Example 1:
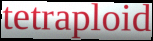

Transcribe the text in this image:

tetraploid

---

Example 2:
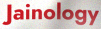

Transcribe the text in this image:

Jainology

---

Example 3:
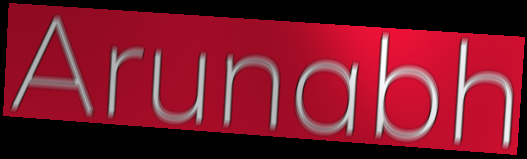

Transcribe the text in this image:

Arunabh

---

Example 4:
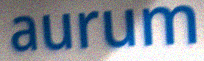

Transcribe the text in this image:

aurum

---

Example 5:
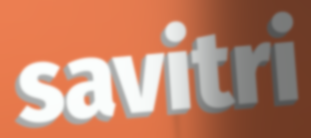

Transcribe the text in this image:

savitri